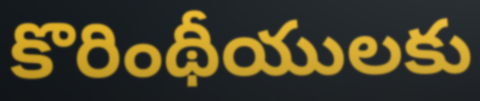
కొరింథీయులకు